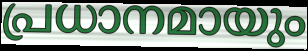
പ്രധാനമായും